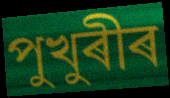
পুখুৰীৰ